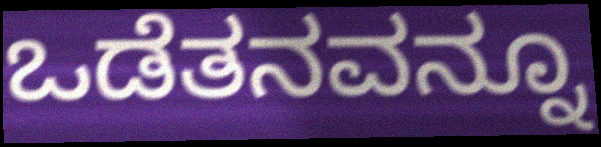
ಒಡೆತನವನ್ನೂ